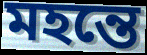
মহন্তে